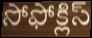
సోఫోక్లిస్